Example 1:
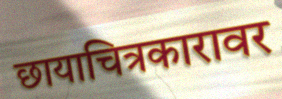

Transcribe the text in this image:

छायाचित्रकारावर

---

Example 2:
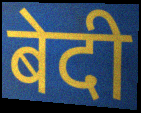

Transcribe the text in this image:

बेदी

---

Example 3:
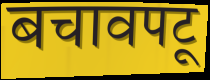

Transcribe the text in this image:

बचावपटू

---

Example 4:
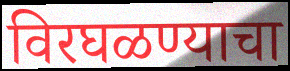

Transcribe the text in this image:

विरघळण्याचा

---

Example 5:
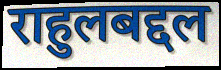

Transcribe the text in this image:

राहुलबद्दल